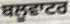
ਬਲੂਵਾਟਰ